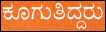
ಕೂಗುತಿದ್ದರು